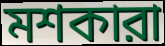
মশকারা